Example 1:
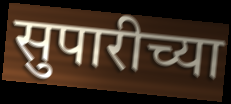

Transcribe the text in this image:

सुपारीच्या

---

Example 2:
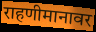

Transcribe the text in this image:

राहणीमानावर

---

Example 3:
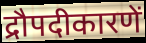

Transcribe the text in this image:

द्रौपदीकारणें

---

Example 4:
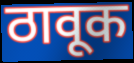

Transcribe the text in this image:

ठावूक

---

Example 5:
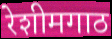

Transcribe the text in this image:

रेशीमगाठ